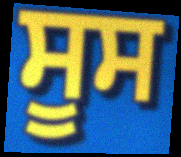
ਸੂਸ